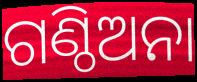
ଗଣ୍ଠିଅନା